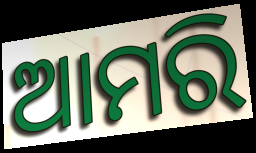
ଆମରି